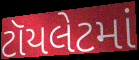
ટૉયલેટમાં